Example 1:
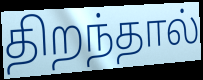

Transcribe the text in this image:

திறந்தால்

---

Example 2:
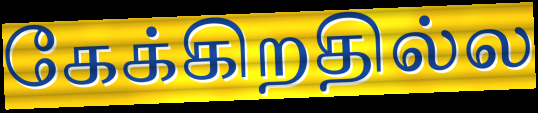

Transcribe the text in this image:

கேக்கிறதில்ல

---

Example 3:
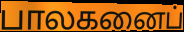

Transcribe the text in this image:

பாலகனைப்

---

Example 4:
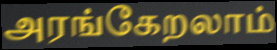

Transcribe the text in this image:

அரங்கேறலாம்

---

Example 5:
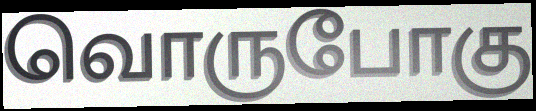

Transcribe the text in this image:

வொருபோகு